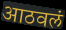
आठवलं